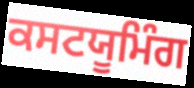
ਕਸਟਯੂਮਿੰਗ